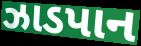
ઝાડપાન